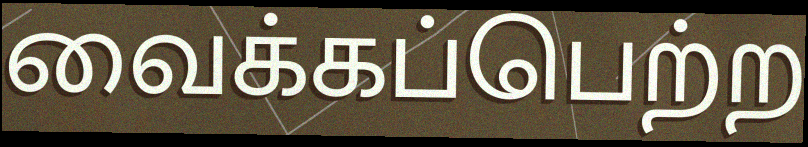
வைக்கப்பெற்ற